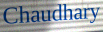
Chaudhary